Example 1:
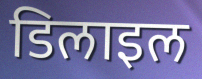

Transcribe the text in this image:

डिलाइल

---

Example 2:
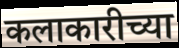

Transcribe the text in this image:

कलाकारीच्या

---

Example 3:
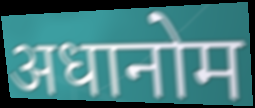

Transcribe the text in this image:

अधानोम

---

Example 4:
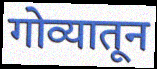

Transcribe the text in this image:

गोव्यातून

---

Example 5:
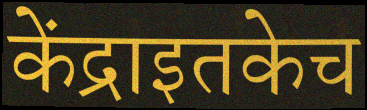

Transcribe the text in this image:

केंद्राइतकेच